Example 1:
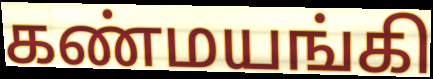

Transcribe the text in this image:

கண்மயங்கி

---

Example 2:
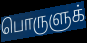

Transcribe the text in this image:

பொருளுக்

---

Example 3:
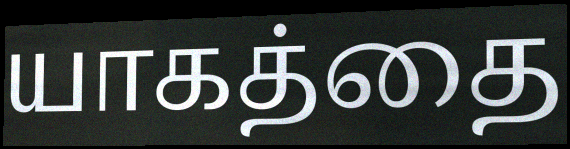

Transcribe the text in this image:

யாகத்தை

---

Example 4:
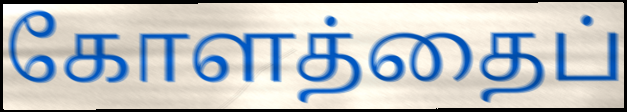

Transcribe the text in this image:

கோளத்தைப்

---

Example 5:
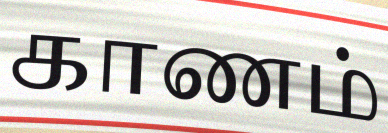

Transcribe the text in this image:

காணம்